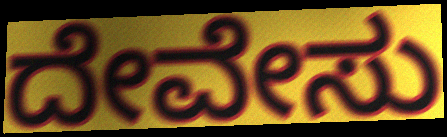
ದೇವೇಸು